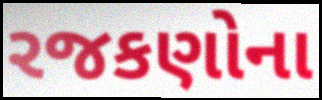
રજકણોના